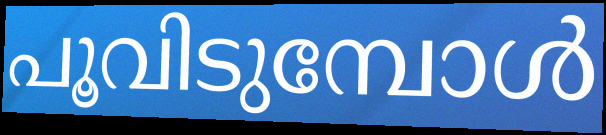
പൂവിടുമ്പോൾ